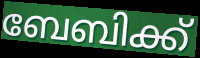
ബേബിക്ക്